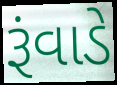
રૂંવાડે